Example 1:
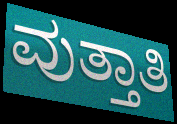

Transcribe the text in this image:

ವುತ್ತಾತಿ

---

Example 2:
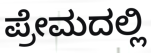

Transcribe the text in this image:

ಪ್ರೇಮದಲ್ಲಿ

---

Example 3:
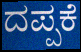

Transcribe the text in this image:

ದಪ್ಪಕೆ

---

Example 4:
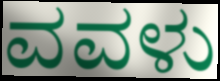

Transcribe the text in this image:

ವವಳು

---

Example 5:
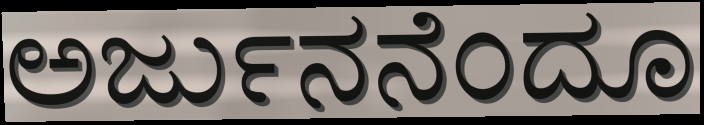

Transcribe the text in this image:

ಅರ್ಜುನನೆಂದೂ